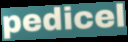
pedicel